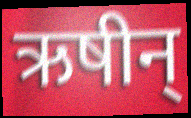
ऋषीन्